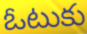
ఓటుకు